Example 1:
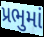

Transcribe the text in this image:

પ્રભુમાં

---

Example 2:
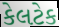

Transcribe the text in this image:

કેલટેક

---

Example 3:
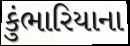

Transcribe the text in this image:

કુંભારિયાના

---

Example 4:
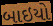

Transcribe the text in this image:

બાઇયો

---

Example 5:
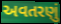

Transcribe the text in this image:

અવતરણું